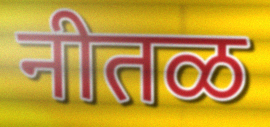
नीतळ